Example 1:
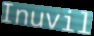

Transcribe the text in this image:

Inuvil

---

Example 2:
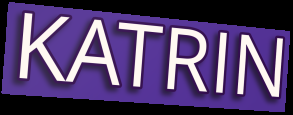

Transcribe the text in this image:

KATRIN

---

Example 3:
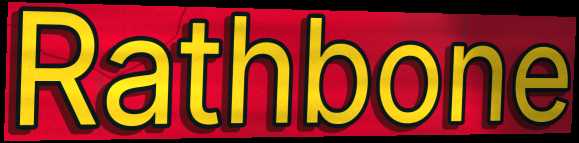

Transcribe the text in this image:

Rathbone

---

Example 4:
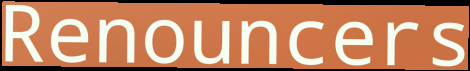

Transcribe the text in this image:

Renouncers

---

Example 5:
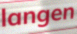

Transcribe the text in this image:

langen